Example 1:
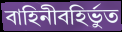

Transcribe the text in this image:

বাহিনীবহির্ভুত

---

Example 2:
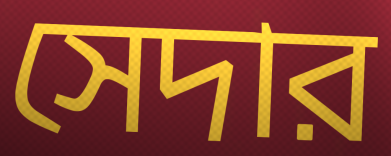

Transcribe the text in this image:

সেদার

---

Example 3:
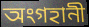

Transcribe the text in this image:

অংগহানী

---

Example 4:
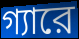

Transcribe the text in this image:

গ্যারে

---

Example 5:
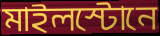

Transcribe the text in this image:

মাইলস্টোনে